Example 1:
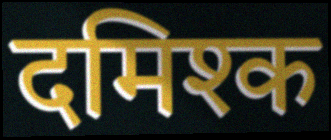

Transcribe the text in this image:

दमिश्क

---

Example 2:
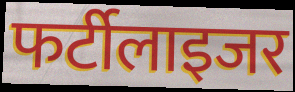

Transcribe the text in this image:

फर्टीलाइजर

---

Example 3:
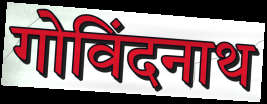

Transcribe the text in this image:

गोविंदनाथ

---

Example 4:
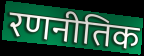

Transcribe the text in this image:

रणनीतिक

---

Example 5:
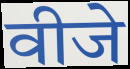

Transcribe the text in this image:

वीजे